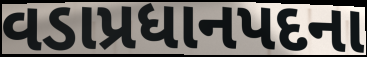
વડાપ્રધાનપદના